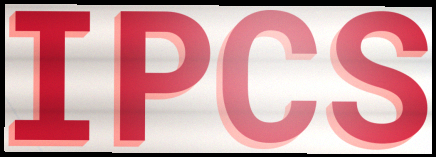
IPCS